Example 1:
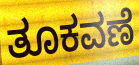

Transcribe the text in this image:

ತೂಕವಣೆ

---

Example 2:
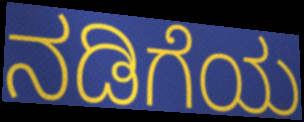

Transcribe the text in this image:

ನಡಿಗೆಯ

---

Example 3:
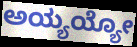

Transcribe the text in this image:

ಅಯ್ಯಯ್ಯೋ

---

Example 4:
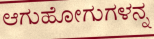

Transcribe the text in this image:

ಆಗುಹೋಗುಗಳನ್ನ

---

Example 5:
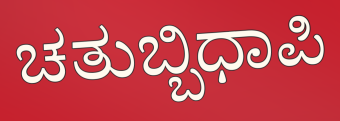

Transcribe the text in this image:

ಚತುಬ್ಬಿಧಾಪಿ